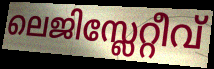
ലെജിസ്ലേറ്റീവ്